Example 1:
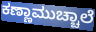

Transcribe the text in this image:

ಕಣ್ಣಾಮುಚ್ಚಾಲೆ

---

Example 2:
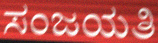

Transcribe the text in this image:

ಸಂಜಯತಿ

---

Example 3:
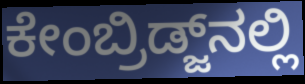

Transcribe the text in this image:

ಕೇಂಬ್ರಿಡ್ಜ್‌ನಲ್ಲಿ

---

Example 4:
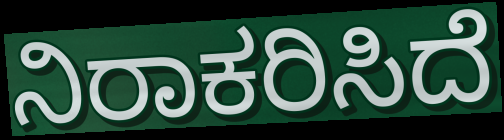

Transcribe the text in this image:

ನಿರಾಕರಿಸಿದೆ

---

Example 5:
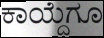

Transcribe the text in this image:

ಕಾಯ್ದೆಗೂ